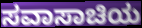
ಸವಾಸಾಚಿಯ